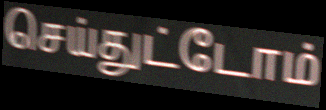
செய்துட்டோம்